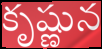
కృష్ణున